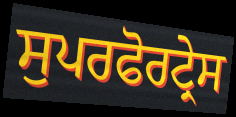
ਸੁਪਰਫੋਰਟ੍ਰੇਸ